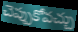
చెప్పుకోవచ్చు